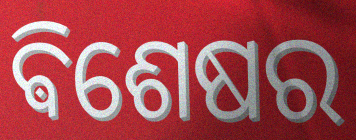
ଵିଶେଷର